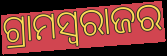
ଗ୍ରାମସ୍ୱରାଜର